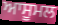
ਆਸੂਮਲ